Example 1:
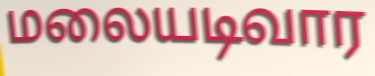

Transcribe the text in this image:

மலையடிவார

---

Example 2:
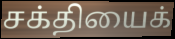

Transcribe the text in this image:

சக்தியைக்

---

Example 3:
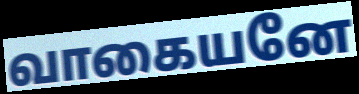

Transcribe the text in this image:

வாகையனே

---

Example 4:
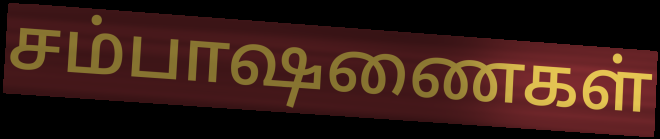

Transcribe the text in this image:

சம்பாஷணைகள்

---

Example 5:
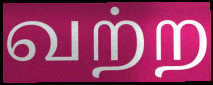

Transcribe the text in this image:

வற்ற